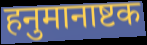
हनुमानाष्टक